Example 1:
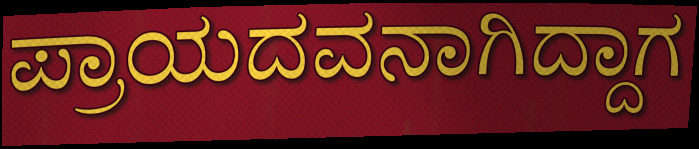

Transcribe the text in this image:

ಪ್ರಾಯದವನಾಗಿದ್ದಾಗ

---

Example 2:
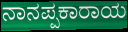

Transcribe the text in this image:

ನಾನಪ್ಪಕಾರಾಯ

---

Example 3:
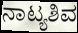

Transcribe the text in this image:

ನಾಟ್ಯಶಿವ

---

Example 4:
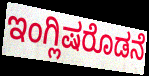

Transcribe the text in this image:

ಇಂಗ್ಲಿಷರೊಡನೆ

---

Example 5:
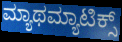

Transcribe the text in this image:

ಮ್ಯಾಥಮ್ಯಾಟಿಕ್ಸ್